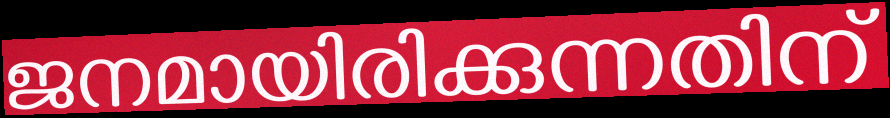
ജനമായിരിക്കുന്നതിന്